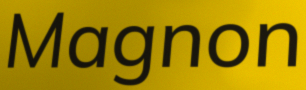
Magnon